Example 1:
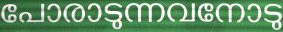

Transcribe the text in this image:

പോരാടുന്നവനോടു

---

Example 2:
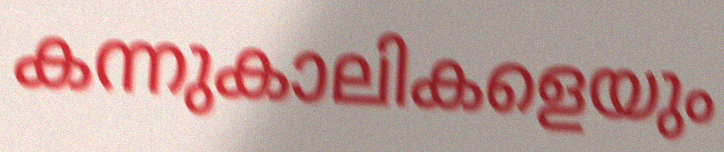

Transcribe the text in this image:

കന്നുകാലികളെയും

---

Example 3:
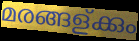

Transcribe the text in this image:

മരങ്ങള്ക്കും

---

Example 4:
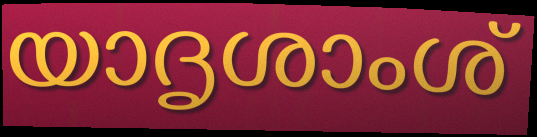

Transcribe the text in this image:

യാദൃശാംശ്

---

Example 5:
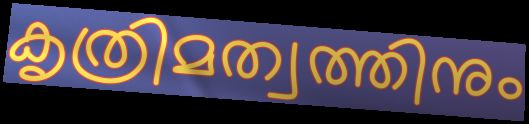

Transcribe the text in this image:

കൃത്രിമത്വത്തിനും